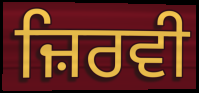
ਜ਼ਿਰਵੀ